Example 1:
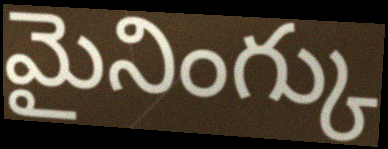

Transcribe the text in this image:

మైనింగ్కు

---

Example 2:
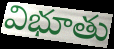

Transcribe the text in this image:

విభూతు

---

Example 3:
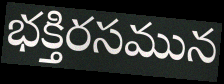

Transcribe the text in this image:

భక్తిరసమున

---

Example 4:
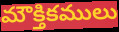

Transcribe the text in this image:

మౌక్తికములు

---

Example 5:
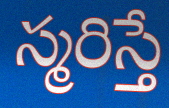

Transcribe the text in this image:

స్మరిస్తే